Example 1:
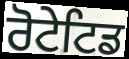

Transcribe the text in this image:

ਰੋਟੇਟਿਡ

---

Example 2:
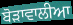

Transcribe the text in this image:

ਬੋੜਾਵਾਲੀਆ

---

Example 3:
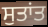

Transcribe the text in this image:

ਸੁਤਾਂਤ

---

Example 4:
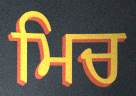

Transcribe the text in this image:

ਮਿਚ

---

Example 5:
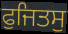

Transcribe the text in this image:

ਫੁਜਿਤਸੁ